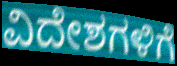
ವಿದೇಶಗಳಿಗೆ